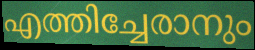
എത്തിച്ചേരാനും